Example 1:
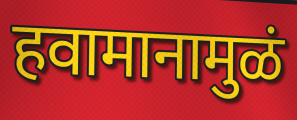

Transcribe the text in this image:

हवामानामुळं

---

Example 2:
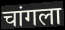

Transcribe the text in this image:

चांगला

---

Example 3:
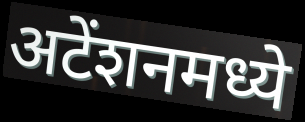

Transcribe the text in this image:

अटेंशनमध्ये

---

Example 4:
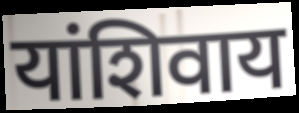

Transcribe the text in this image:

यांशिवाय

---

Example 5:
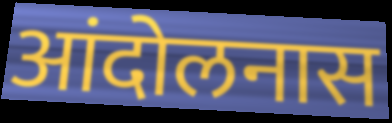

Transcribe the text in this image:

आंदोलनास